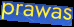
prawas